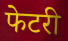
फेटरी